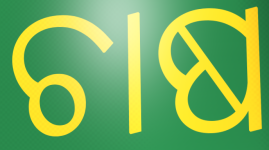
ଚାଷ